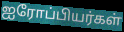
ஐரோப்பியர்கள்